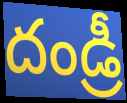
దండ్రీ